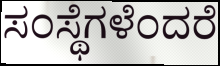
ಸಂಸ್ಥೆಗಳೆಂದರೆ